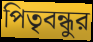
পিতৃবন্ধুর